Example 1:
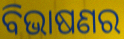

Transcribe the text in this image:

ବିଭାଷଣର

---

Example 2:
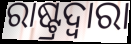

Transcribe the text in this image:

ରାଷ୍ଟ୍ରଦ୍ୱାରା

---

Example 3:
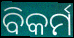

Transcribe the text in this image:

ବିକର୍ମ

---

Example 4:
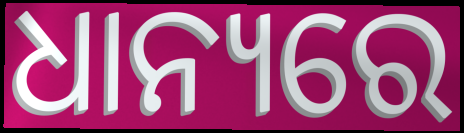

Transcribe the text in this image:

ଧାନ୍ୟରେ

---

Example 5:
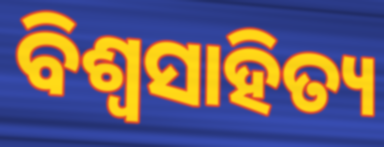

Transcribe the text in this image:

ବିଶ୍ଵସାହିତ୍ୟ